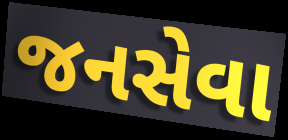
જનસેવા